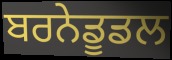
ਬਰਨੇਡੂਡਲ